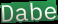
Dabe